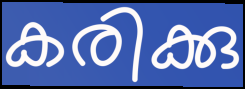
കരിക്കു